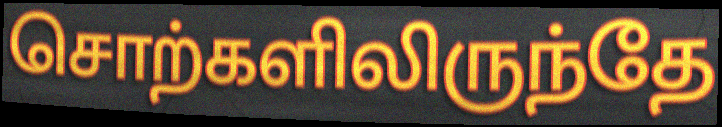
சொற்களிலிருந்தே